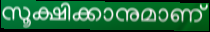
സൂക്ഷിക്കാനുമാണ്